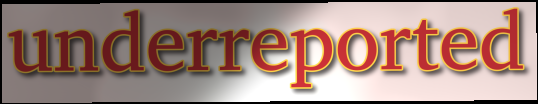
underreported